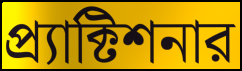
প্র্যাক্টিশনার